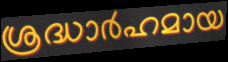
ശ്രദ്ധാർഹമായ